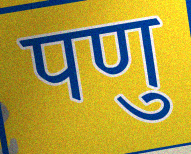
पणु